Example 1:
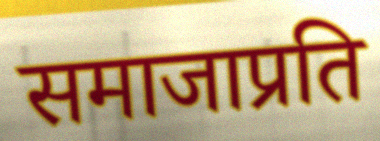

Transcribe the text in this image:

समाजाप्रति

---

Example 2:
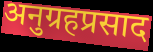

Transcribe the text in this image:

अनुग्रहप्रसाद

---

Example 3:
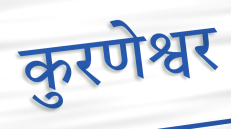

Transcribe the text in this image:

कुरणेश्वर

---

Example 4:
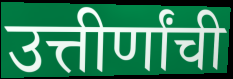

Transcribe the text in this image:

उत्तीर्णांची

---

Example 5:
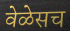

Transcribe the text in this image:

वेळेसच